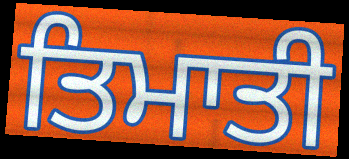
ਤਿਮਾਤੀ